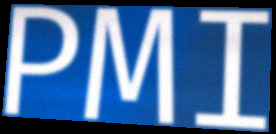
PMI